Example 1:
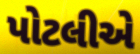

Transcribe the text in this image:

પોટલીએ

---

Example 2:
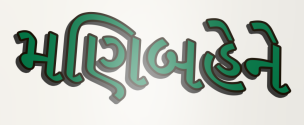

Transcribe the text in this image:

મણિબહેને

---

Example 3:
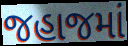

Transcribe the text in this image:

જહાજમાં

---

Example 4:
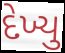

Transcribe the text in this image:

દેખ્યુ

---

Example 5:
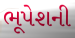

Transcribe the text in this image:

ભૂપેશની